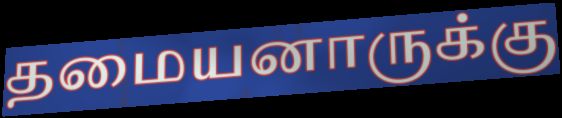
தமையனாருக்கு